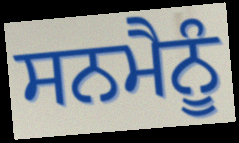
ਸਨਮੈਨੂੰ